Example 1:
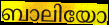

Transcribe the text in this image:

ബാലിയോ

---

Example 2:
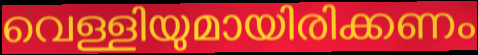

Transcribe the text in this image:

വെള്ളിയുമായിരിക്കണം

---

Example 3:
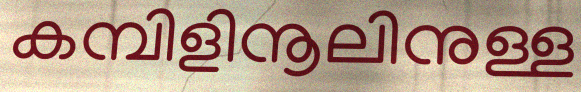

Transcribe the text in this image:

കമ്പിളിനൂലിനുള്ള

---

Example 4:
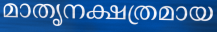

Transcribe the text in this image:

മാതൃനക്ഷത്രമായ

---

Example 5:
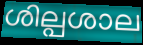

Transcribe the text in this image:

ശില്പശാല